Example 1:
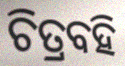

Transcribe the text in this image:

ଚିତ୍ରବହି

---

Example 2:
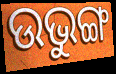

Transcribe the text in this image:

ଉଭୁଙ୍ଗ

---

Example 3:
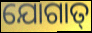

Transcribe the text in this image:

ଯୋଗାତ୍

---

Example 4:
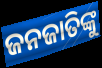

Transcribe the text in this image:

ଜନଜାତିଙ୍କୁ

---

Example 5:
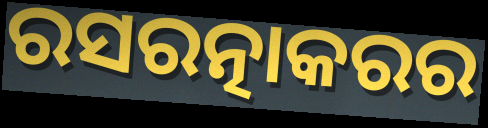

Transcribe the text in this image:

ରସରତ୍ନାକରର